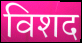
विशद